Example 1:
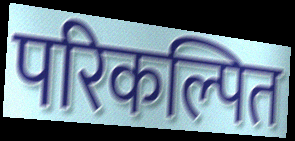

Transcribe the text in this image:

परिकल्पित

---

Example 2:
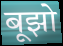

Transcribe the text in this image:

बूझो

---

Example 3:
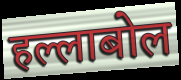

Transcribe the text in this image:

हल्लाबोल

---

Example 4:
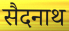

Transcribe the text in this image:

सैदनाथ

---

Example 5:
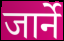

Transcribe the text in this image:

जार्ने